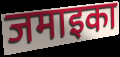
जमाइका